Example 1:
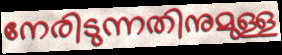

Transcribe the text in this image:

നേരിടുന്നതിനുമുള്ള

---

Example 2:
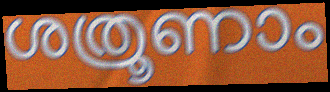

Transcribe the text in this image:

ശത്രൂണാം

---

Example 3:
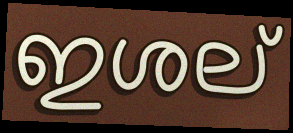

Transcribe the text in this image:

ഇശല്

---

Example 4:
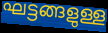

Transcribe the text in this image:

ഘട്ടങ്ങളുള്ള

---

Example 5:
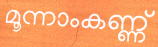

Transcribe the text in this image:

മൂന്നാംകണ്ണ്